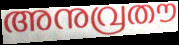
അനുവ്രതൗ